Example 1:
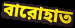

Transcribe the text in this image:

বারোহাত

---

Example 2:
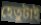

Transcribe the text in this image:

হেতুটাই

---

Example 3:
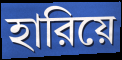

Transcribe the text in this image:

হারিয়ে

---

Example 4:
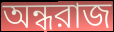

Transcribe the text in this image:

অন্ধরাজ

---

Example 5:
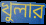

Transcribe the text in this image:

খুলার